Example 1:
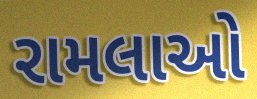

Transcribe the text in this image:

રામલાઓ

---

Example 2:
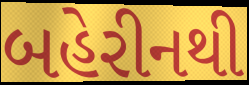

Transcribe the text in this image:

બહેરીનથી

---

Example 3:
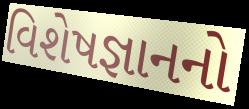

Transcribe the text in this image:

વિશેષજ્ઞાનનો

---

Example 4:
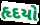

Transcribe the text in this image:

હૃદયો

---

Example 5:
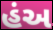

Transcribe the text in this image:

હંઅ